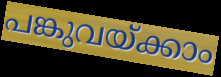
പങ്കുവയ്ക്കാം